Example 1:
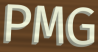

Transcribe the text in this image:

PMG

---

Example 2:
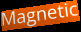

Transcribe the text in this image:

Magnetic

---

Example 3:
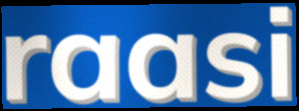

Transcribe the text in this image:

raasi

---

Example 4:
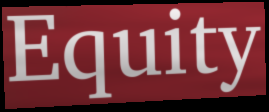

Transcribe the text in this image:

Equity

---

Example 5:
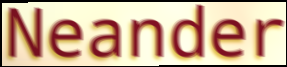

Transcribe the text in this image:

Neander